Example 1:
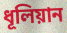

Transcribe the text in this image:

ধূলিয়ান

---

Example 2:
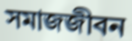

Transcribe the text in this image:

সমাজজীবন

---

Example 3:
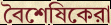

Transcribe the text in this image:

বৈশেষিকেরা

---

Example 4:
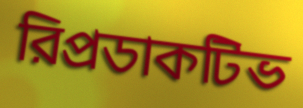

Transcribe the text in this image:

রিপ্রডাকটিভ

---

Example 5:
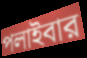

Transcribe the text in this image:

পলাইবার